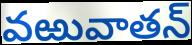
వఱువాతన్